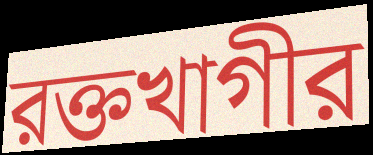
রক্তখাগীর